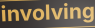
involving